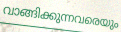
വാങ്ങിക്കുന്നവരെയും